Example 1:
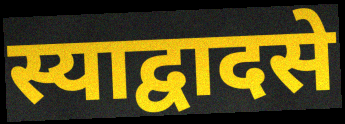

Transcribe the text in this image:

स्याद्वादसे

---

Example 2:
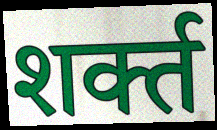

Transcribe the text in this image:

शर्क्त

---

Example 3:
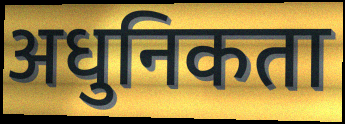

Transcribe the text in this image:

अधुनिकता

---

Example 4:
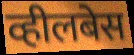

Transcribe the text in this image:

व्हीलबेस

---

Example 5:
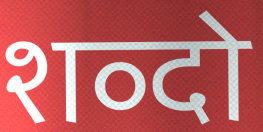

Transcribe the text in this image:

शव्दो